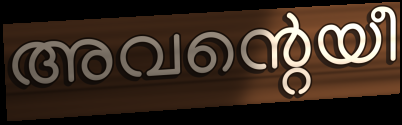
അവന്റെയീ